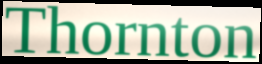
Thornton